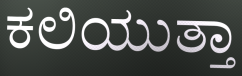
ಕಲಿಯುತ್ತಾ